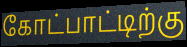
கோட்பாட்டிற்கு